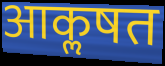
आकॢषत